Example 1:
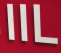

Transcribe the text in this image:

IIL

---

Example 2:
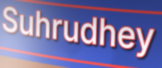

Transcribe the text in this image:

Suhrudhey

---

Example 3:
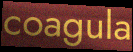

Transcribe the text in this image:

coagula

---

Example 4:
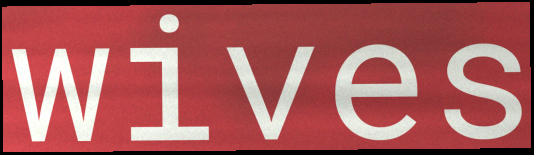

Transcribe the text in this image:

wives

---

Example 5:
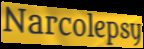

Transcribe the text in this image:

Narcolepsy